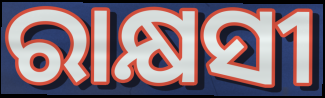
ରାକ୍ଷସୀ